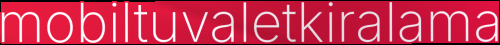
mobiltuvaletkiralama